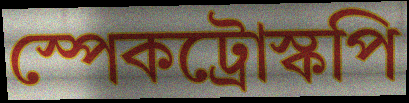
স্পেকট্রোস্কপি